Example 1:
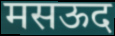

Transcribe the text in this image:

मसऊद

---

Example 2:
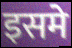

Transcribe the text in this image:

इसमे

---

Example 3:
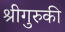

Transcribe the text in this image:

श्रीगुरुकी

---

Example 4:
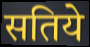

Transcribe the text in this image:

सतिये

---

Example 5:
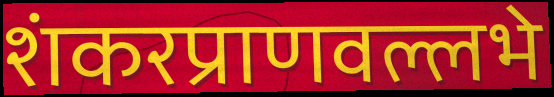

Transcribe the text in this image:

शंकरप्राणवल्लभे